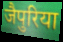
जैपुरिया